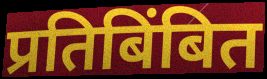
प्रतिबिंबित